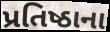
પ્રતિષ્ઠાના